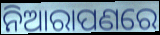
ନିଆରାପଣରେ